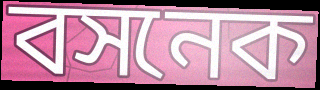
বসনেক